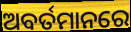
ଅବର୍ତମାନରେ